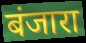
बंजारा